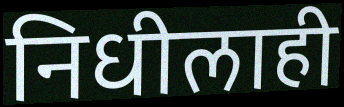
निधीलाही